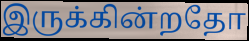
இருக்கின்றதோ